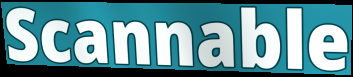
Scannable